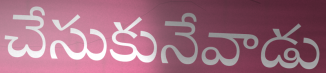
చేసుకునేవాడు